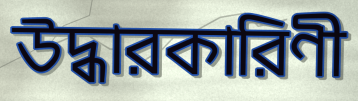
উদ্ধারকারিণী